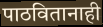
पाठवितानाही